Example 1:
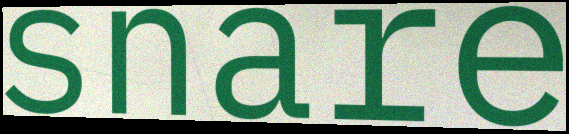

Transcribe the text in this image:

snare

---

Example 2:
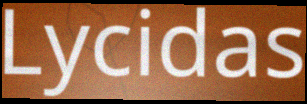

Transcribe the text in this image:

Lycidas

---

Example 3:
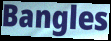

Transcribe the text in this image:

Bangles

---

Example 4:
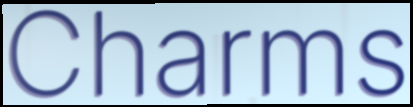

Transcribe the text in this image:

Charms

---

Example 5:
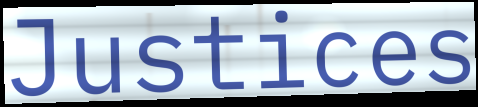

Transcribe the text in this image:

Justices